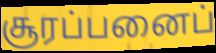
சூரப்பனைப்